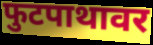
फुटपाथावर